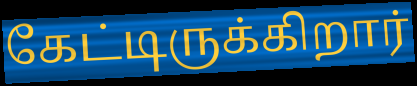
கேட்டிருக்கிறார்